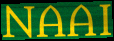
NAAI